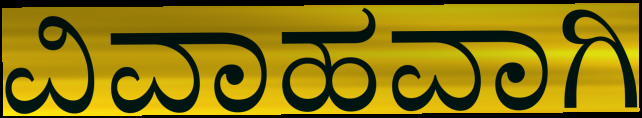
ವಿವಾಹವಾಗಿ